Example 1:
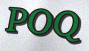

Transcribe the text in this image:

POQ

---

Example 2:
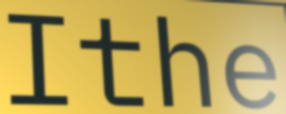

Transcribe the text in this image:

Ithe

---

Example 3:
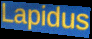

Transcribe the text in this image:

Lapidus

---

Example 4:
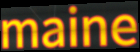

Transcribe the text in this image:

maine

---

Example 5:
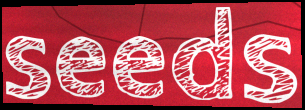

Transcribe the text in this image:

seeds